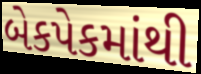
બેકપેકમાંથી